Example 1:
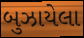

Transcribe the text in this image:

બુઝાયેલા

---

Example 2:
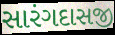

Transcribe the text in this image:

સારંગદાસજી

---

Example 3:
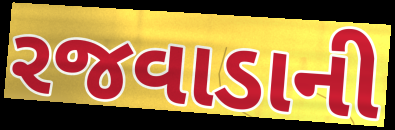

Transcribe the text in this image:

રજવાડાની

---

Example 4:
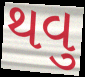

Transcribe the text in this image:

થવુ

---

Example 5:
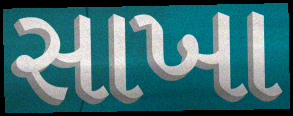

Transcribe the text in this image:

સાખા